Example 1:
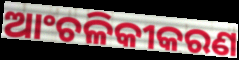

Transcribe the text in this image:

ଆଂଚଳିକୀକରଣ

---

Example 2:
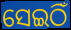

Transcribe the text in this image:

ସେଇଠିଁ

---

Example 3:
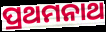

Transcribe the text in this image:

ପ୍ରଥମନାଥ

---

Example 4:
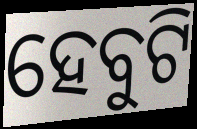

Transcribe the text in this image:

ହେବୁଟି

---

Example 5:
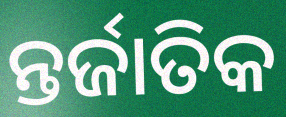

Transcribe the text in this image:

ନ୍ତର୍ଜାତିକ